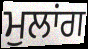
ਮੁਲਾਂਗ